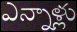
ఎన్నాళ్లు